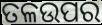
ତଳଉପର